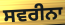
ਸਵਰੀਨਾ